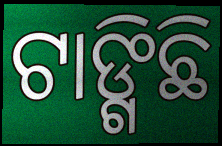
ଟାଙ୍ଗିଛି